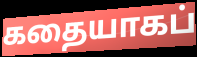
கதையாகப்